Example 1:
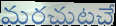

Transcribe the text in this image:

మరచుటచే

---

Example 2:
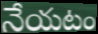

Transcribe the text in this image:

నేయటం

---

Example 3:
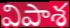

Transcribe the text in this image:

విపాశ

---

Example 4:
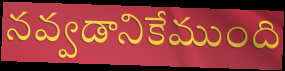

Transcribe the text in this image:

నవ్వడానికేముంది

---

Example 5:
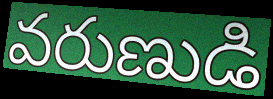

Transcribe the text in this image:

వరుణుడి